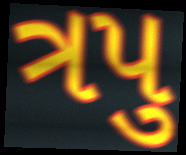
ત્રપુ